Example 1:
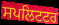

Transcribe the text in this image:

ਸਪਲਿਟਟਰ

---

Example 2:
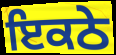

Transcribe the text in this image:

ਇਕਠੇ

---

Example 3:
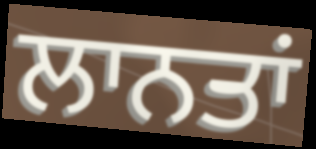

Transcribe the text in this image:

ਲਾਨਤਾਂ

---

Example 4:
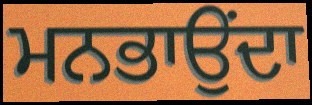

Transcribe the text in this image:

ਮਨਭਾਉਂਦਾ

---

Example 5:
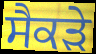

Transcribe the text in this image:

ਸੈਕੜੇ